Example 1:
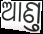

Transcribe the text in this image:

ଆଣ୍ତ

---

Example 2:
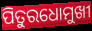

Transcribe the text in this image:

ପିତୁରଧୋମୁଖୀ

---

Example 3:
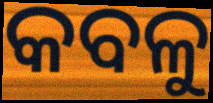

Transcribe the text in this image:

କବଳୁ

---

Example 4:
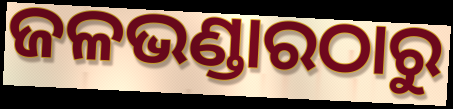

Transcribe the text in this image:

ଜଳଭଣ୍ଡାରଠାରୁ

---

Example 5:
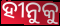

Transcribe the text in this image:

ହୀନୁକୁ